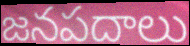
జనపదాలు